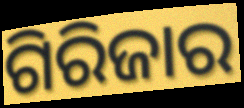
ଗିରିଜାର